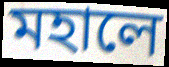
মহালে